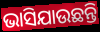
ଭାସିଯାଉଛନ୍ତି